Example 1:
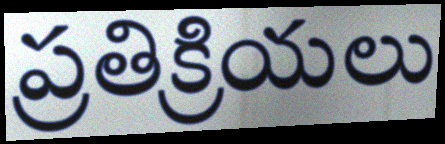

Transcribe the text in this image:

ప్రతిక్రియలు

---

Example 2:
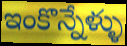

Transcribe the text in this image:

ఇంకొన్నేళ్ళు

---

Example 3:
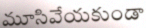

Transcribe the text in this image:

మూసివేయకుండా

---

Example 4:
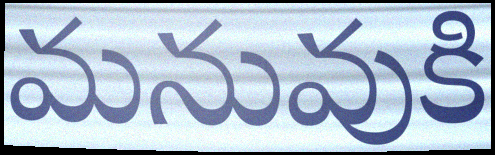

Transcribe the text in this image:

మనువుకి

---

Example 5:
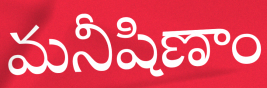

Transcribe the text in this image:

మనీషిణాం